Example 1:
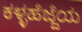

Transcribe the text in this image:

ಕಳ್ಳಹೆಜ್ಜೆಯ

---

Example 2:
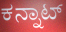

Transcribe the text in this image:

ಕನ್ನಾಟ್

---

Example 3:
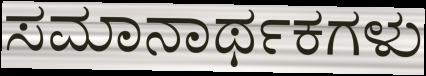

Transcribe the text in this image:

ಸಮಾನಾರ್ಥಕಗಳು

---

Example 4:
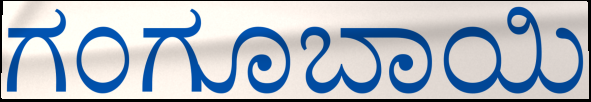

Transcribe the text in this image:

ಗಂಗೂಬಾಯಿ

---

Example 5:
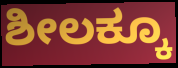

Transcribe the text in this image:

ಶೀಲಕ್ಕೂ